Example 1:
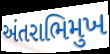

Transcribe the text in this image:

અંતરાભિમુખ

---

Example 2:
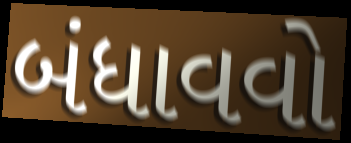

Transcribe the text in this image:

બંધાવવો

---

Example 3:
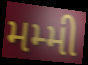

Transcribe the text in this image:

મમ્મી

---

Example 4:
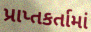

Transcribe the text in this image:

પ્રાપ્તકર્તામાં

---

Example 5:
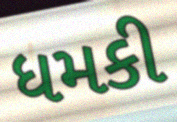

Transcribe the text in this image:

ધમકી